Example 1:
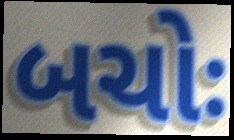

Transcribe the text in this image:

બચોઃ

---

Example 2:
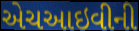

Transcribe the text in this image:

એચઆઇવીની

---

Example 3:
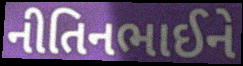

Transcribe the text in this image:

નીતિનભાઈને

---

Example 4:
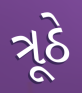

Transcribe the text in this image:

ત્રૂઠે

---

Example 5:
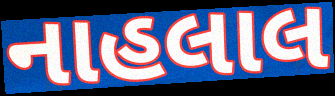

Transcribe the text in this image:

નાહલાલ